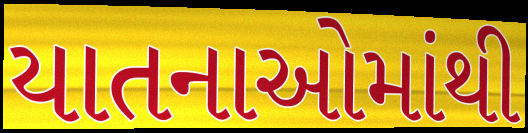
યાતનાઓમાંથી